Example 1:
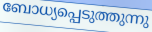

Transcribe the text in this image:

ബോധ്യപ്പെടുത്തുന്നു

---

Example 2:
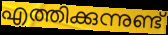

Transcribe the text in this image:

എത്തിക്കുന്നുണ്ട്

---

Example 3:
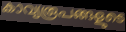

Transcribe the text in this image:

കാവ്യരൂപങ്ങളുടെ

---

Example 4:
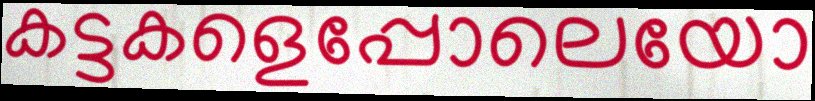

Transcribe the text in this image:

കട്ടകളെപ്പോലെയോ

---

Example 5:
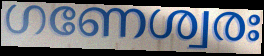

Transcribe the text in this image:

ഗണേശ്വരഃ